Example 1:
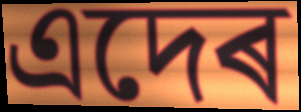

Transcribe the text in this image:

এদেৰ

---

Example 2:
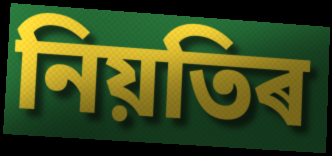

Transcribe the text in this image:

নিয়তিৰ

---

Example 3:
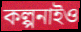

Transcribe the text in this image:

কল্পনাইও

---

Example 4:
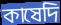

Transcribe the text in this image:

কাষেদি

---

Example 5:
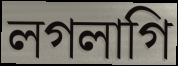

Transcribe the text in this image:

লগলাগি